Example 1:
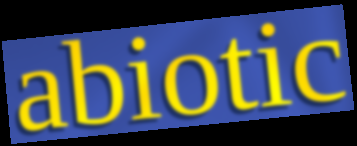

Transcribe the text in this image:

abiotic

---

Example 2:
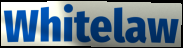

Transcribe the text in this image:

Whitelaw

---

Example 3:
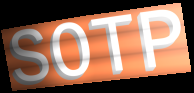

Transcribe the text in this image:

SOTP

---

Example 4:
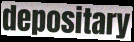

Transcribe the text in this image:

depositary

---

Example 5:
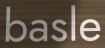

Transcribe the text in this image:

basle